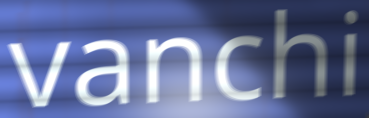
vanchi